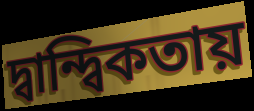
দ্বান্দ্বিকতায়